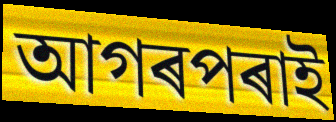
আগৰপৰাই